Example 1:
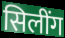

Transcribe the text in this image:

सिलींग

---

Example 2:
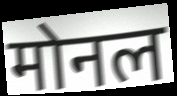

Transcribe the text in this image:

मोनल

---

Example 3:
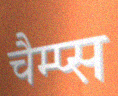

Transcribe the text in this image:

चैम्प्स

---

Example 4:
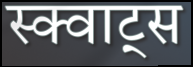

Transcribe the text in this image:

स्क्वाट्स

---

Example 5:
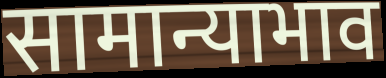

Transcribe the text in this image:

सामान्याभाव